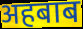
अहबाब